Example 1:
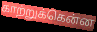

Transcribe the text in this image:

காற்றுக்கென்ன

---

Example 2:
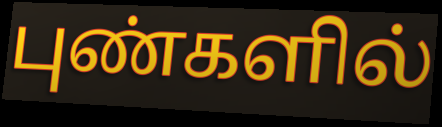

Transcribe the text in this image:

புண்களில்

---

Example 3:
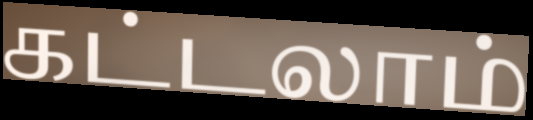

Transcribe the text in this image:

கட்டலாம்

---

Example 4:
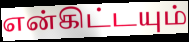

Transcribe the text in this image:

என்கிட்டயும்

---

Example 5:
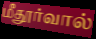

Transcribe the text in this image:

மீதூர்வால்